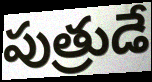
పుత్రుడే